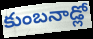
కుంబనాడ్లో